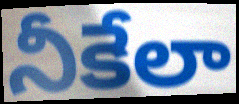
నీకేలా